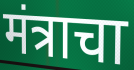
मंत्राचा